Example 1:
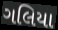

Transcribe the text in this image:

ગલિયા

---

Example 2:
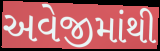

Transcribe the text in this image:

અવેજીમાંથી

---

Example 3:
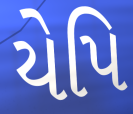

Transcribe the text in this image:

યેપિ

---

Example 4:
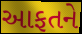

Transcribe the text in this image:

આફતને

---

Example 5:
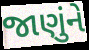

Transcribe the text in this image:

જાણુંને